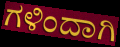
ಗಳಿಂದಾಗಿ